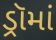
ડ્રૉમાં